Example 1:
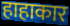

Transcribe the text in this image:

हाहाकार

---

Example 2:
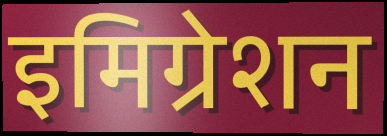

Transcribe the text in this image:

इमिग्रेशन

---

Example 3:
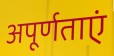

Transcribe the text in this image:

अपूर्णताएं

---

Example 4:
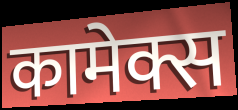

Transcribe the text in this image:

कामेक्स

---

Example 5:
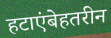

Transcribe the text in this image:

हटाएंबेहतरीन